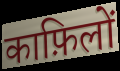
काफ़िलों